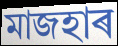
মাজহাৰ